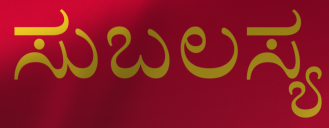
ಸುಬಲಸ್ಯ